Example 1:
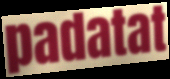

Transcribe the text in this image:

padatat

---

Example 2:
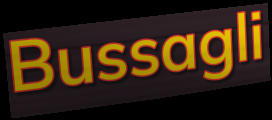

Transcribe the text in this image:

Bussagli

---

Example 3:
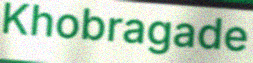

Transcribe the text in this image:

Khobragade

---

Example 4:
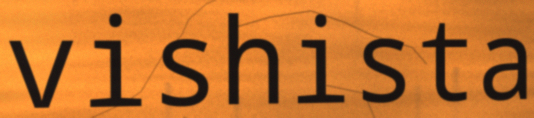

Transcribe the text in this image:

vishista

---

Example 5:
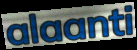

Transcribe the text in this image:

alaanti